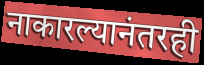
नाकारल्यानंतरही